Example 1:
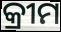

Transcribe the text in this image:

କ୍ରୀମ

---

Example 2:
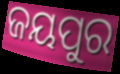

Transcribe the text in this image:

ଜୟପୁର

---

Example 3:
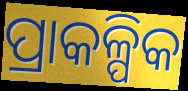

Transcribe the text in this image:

ପ୍ରାକଳ୍ପିକ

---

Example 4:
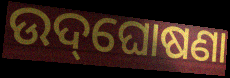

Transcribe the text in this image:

ଉଦ୍‌ଘୋଷଣା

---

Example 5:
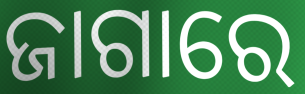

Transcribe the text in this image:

ଜାଗାରେ